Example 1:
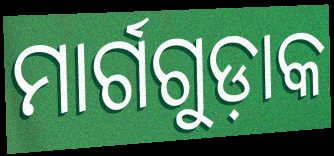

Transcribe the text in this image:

ମାର୍ଗଗୁଡ଼ାକ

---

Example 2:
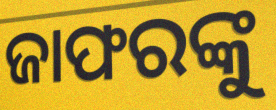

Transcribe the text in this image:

ଜାଫରଙ୍କୁ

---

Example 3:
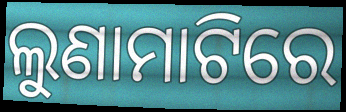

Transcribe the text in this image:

ଲୁଣାମାଟିରେ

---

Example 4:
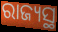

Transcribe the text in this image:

ରାଜ୍ୟସ୍ଥ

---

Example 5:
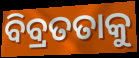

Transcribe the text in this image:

ବିବ୍ରତତାକୁ